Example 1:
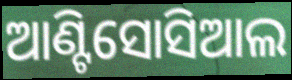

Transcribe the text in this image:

ଆଣ୍ଟିସୋସିଆଲ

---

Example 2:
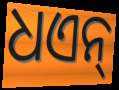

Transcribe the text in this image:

ଧଏନ୍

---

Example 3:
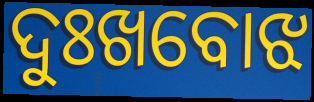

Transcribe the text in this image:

ଦୁଃଖବୋଝ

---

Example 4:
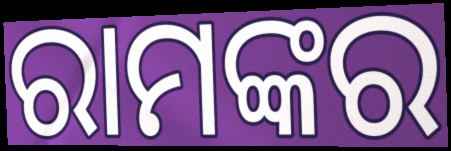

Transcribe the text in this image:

ରାମଙ୍କର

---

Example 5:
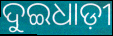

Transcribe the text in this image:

ଦୁଇଧାଡ଼ୀ